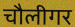
चौलीगर